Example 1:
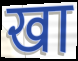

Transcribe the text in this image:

खा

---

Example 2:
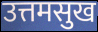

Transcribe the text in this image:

उत्तमसुख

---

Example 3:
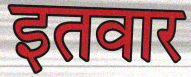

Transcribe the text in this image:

इतवार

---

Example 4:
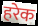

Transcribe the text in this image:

हरेक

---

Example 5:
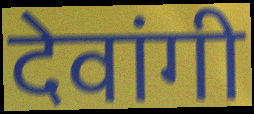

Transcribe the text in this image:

देवांगी